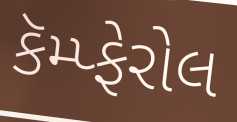
કૅમ્પ્ફેરોલ